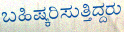
ಬಹಿಷ್ಕರಿಸುತ್ತಿದ್ದರು